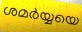
ശമർയ്യയെ